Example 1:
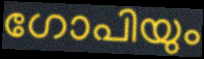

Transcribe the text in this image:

ഗോപിയും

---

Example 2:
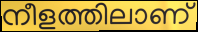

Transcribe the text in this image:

നീളത്തിലാണ്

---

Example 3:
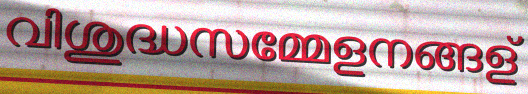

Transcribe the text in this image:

വിശുദ്ധസമ്മേളനങ്ങള്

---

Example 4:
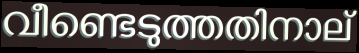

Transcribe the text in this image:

വീണ്ടെടുത്തതിനാല്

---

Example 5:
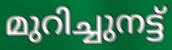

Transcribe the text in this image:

മുറിച്ചുനട്ട്